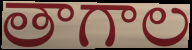
తాగాల